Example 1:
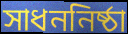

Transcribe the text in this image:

সাধননিষ্ঠা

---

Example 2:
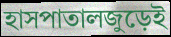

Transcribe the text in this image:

হাসপাতালজুড়েই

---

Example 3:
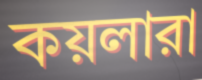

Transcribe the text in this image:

কয়লারা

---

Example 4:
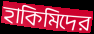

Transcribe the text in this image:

হাকিমিদের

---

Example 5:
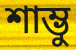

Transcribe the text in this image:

শাম্ভু